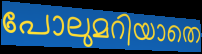
പോലുമറിയാതെ